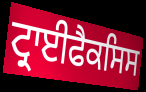
ਟ੍ਰਾਈਫੈਕਸਿਸ